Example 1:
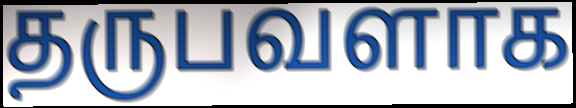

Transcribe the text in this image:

தருபவளாக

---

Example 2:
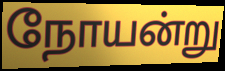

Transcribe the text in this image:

நோயன்று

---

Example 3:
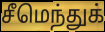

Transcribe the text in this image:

சீமெந்துக்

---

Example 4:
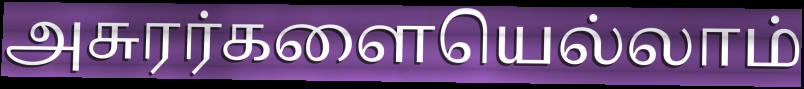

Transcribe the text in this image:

அசுரர்களையெல்லாம்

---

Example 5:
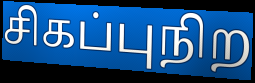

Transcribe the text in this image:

சிகப்புநிற